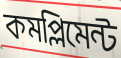
কমপ্লিমেন্ট